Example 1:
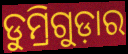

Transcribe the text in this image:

ଡୁମ୍ରିଗୁଡ଼ାର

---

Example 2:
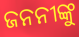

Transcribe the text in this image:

ଜନନୀଙ୍କୁ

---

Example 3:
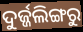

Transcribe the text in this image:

ଦୁର୍ଜ୍ଜଲିଙ୍ଗରୁ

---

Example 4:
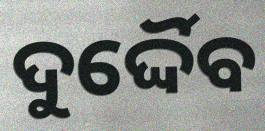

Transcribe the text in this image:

ଦୁର୍ଦ୍ଦୈବ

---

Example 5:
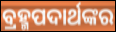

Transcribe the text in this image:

ବ୍ରହ୍ମପଦାର୍ଥଙ୍କର